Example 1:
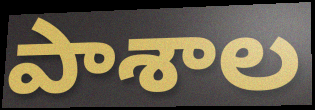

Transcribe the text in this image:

పాశాల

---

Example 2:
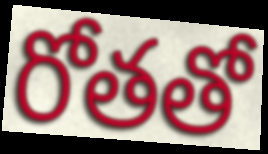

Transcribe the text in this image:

రోతతో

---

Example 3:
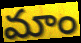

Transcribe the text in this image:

మాం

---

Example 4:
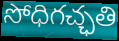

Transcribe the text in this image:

సోధిగచ్ఛతి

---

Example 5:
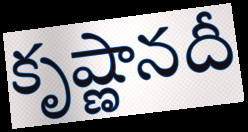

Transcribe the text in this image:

కృష్ణానదీ